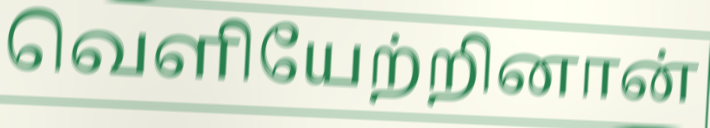
வெளியேற்றினான்